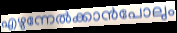
എഴുന്നേൽക്കാൻപോലും